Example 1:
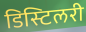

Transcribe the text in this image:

डिस्टिलरी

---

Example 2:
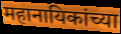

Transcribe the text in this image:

महानायिकांच्या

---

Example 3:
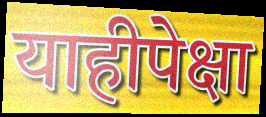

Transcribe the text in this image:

याहीपेक्षा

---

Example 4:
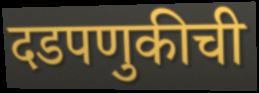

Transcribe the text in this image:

दडपणुकीची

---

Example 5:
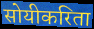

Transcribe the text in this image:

सोयीकरिता